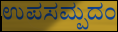
ಉಪಸಮ್ಪದಂ